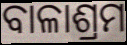
ବାଳାଶ୍ରମ